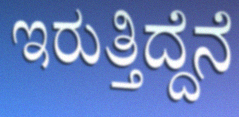
ಇರುತ್ತಿದ್ದೆನೆ